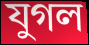
যুগল